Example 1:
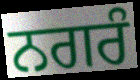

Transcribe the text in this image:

ਨਗਰੰ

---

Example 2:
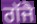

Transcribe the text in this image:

ਗੱਜੈ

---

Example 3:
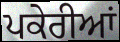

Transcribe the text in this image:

ਪਕੇਰੀਆਂ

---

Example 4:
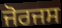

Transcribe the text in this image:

ਜੋਰਜਸ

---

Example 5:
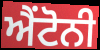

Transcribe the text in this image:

ਐਂਟੋਨੀ